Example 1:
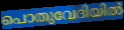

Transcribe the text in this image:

പൊതുവേദിയിൽ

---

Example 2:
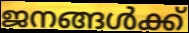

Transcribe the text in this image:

ജനങ്ങൾക്ക്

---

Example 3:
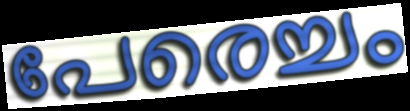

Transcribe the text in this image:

പേരെച്ചം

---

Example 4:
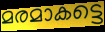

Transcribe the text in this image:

മരമാകട്ടെ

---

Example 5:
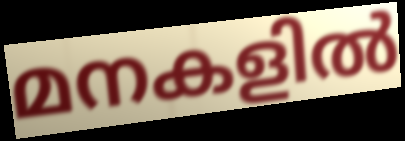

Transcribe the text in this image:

മനകളിൽ